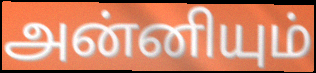
அன்னியும்